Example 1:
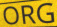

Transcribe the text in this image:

ORG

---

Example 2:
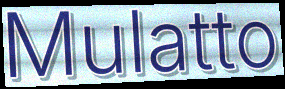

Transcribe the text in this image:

Mulatto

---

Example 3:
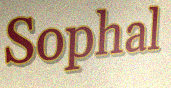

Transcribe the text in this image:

Sophal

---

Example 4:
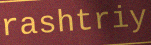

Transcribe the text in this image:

rashtriy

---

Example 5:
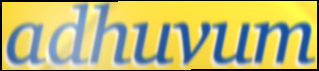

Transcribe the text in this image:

adhuvum